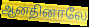
ஆனதினாலே